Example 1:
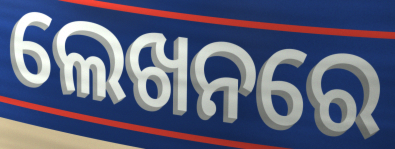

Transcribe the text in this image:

ଲେଖନରେ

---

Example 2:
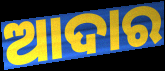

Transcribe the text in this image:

ଆଦାର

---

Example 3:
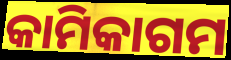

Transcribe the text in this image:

କାମିକାଗମ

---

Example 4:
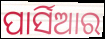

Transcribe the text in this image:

ପାର୍ସିଆର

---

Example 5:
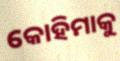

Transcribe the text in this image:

କୋହିମାକୁ